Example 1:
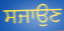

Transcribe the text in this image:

ਸਜਾਉਣ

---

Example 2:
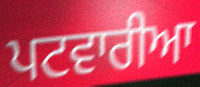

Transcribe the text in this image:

ਪਟਵਾਰੀਆ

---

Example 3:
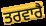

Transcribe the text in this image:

ਤਰਵਾਰੈ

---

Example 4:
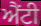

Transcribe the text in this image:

ਐਂਟੀ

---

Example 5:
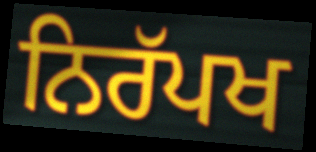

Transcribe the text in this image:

ਨਿਰੱਪਖ